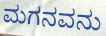
ಮಗನವನು